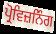
ਪ੍ਰੋਵਿਜ਼ਨਿੰਗ